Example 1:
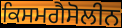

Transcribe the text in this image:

ਕਿਸਮਗੈਸੋਲੀਨ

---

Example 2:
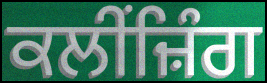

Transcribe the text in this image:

ਕਲੀਂਜ਼ਿੰਗ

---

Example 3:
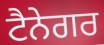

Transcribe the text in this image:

ਟੈਨੇਗਰ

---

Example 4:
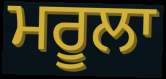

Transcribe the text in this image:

ਮਰੂਲਾ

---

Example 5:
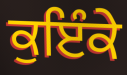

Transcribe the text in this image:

ਕੁਇੰਕੇ